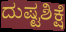
ದುಷ್ಟಶಿಕ್ಷೆ